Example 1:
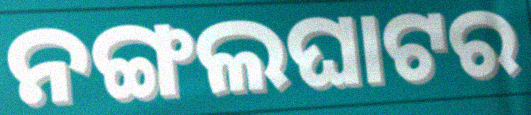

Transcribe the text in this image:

ନଙ୍ଗଲଘାଟର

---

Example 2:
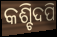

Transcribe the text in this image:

କଶ୍ଚିଦପି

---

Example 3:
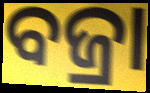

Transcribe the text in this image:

ବଜ୍ରା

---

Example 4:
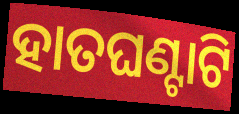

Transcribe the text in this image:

ହାତଘଣ୍ଟାଟି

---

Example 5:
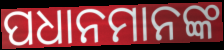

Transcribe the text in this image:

ପଧାନମାନଙ୍କ